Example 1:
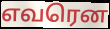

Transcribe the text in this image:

எவரென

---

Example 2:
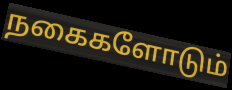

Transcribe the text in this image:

நகைகளோடும்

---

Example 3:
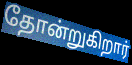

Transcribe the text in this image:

தோன்றுகிறார்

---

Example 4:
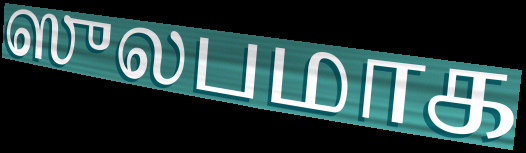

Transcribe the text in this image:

ஸுலபமாக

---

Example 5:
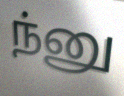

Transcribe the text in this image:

ந்னு